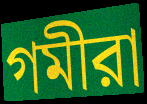
গমীরা